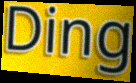
Ding